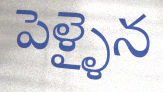
పెళ్ళైన